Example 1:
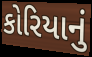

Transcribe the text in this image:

કોરિયાનું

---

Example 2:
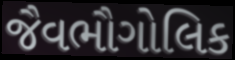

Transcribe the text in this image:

જૈવભૌગોલિક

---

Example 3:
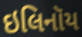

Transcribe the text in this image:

ઇલિનૉય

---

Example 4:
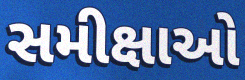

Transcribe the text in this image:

સમીક્ષાઓ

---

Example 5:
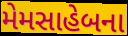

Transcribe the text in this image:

મેમસાહેબના